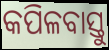
କପିଳବାସ୍ତୁ